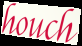
houch